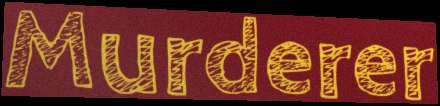
Murderer